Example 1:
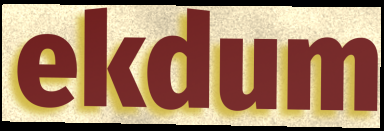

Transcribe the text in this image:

ekdum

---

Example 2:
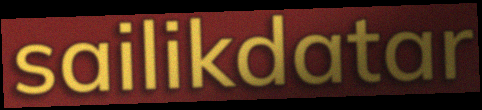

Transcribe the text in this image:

sailikdatar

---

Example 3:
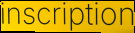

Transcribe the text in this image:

inscription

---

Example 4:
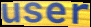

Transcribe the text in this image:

user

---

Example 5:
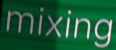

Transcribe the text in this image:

mixing